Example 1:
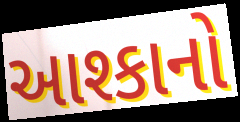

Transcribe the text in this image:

આશ્કાનો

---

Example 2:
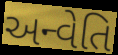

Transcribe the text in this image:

અન્વેતિ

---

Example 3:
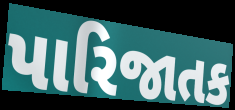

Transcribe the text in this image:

પારિજાતક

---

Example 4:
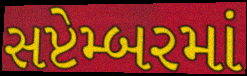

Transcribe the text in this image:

સપ્ટેમ્બરમાં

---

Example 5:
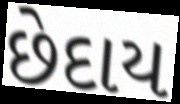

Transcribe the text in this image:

છેદાય